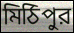
মিঠিপুর